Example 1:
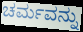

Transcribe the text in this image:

ಚರ್ಮವನ್ನು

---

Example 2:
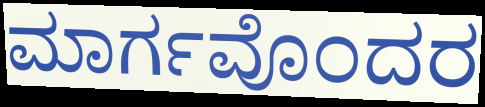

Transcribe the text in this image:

ಮಾರ್ಗವೊಂದರ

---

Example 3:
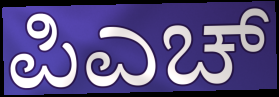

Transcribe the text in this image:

ಪಿಎಚ್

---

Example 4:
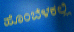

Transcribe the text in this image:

ಹೊಂಬೆಳಕಲ್ಲಿ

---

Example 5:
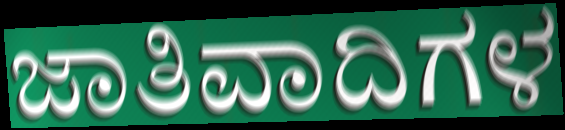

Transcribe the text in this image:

ಜಾತಿವಾದಿಗಳ